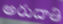
అరుదాతి